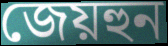
জেয়হুন